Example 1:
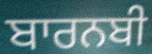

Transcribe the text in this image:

ਬਾਰਨਬੀ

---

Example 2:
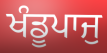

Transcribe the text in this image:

ਖੰਡੂਪਾਜੁ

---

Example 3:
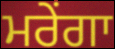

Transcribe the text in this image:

ਮਰੇਂਗਾ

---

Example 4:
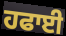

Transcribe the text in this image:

ਹਫਾਈ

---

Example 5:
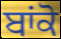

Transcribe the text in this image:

ਬਾਂਕੋ